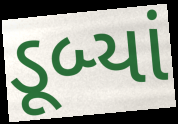
ડૂબ્યાં